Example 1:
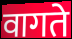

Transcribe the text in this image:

वागते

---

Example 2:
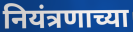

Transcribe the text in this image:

नियंत्रणाच्या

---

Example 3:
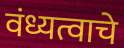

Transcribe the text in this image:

वंध्यत्वाचे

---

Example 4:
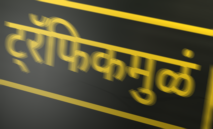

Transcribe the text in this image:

ट्रॅफिकमुळं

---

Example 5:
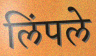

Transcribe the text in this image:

लिंपले